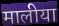
मालीया